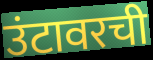
उंटावरची